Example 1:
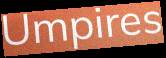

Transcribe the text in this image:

Umpires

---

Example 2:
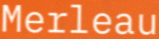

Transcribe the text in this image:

Merleau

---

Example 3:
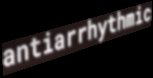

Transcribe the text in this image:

antiarrhythmic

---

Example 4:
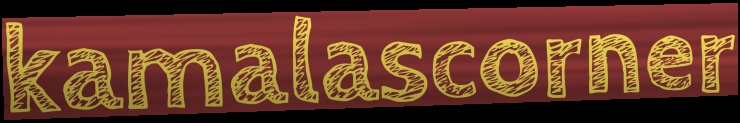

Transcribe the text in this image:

kamalascorner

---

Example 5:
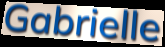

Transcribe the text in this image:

Gabrielle